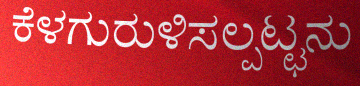
ಕೆಳಗುರುಳಿಸಲ್ಪಟ್ಟನು